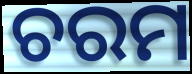
ଚରମ